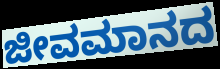
ಜೀವಮಾನದ